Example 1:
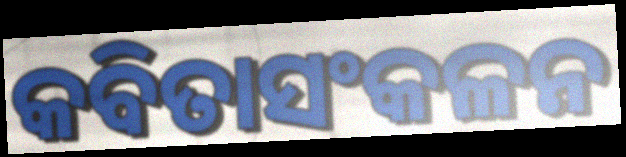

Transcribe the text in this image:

କବିତାସଂକଳନ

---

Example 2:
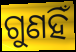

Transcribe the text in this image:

ଗୁଣହିଁ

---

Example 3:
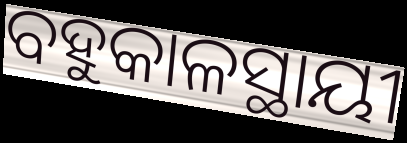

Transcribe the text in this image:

ବହୁକାଳସ୍ଥାୟୀ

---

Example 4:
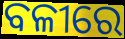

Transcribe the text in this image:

ବଳୀରେ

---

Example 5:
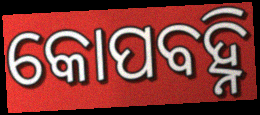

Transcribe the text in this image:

କୋପବହ୍ନି